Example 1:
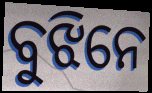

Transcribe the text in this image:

ବୁଝିନେ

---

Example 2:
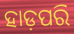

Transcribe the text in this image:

ହାଡ଼ପରି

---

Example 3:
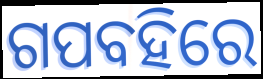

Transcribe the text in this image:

ଗପବହିରେ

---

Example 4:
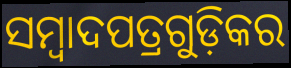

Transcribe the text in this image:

ସମ୍ୱାଦପତ୍ରଗୁଡ଼ିକର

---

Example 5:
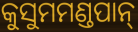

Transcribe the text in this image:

କୁସୁମମଣ୍ଡପାନ୍